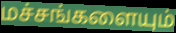
மச்சங்களையும்